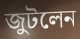
জুটলেন